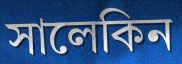
সালেকিন